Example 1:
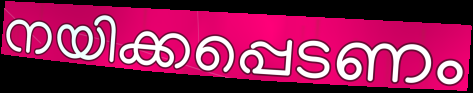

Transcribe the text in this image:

നയിക്കപ്പെടണം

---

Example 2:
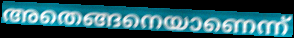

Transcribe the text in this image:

അതെങ്ങനെയാണെന്ന്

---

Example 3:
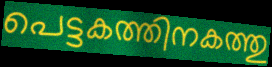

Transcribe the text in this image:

പെട്ടകത്തിനകത്തു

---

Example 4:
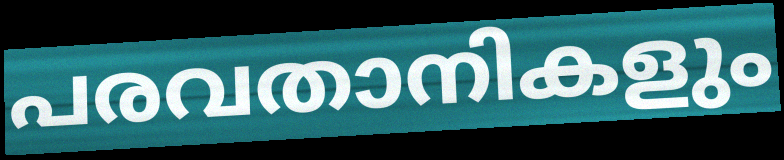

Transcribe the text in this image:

പരവതാനികളും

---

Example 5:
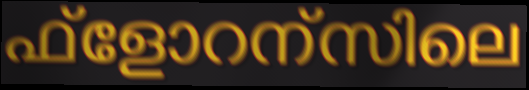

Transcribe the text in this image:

ഫ്ളോറന്സിലെ